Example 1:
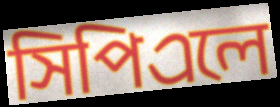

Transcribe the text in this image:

সিপিএলে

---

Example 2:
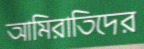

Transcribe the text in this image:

আমিরাতিদের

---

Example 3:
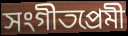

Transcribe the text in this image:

সংগীতপ্রেমী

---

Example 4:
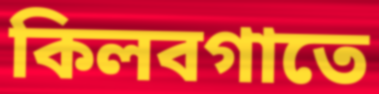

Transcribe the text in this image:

কিলবগাতে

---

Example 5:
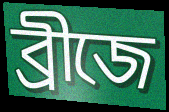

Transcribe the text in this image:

ব্রীজে